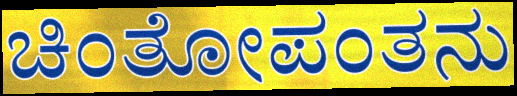
ಚಿಂತೋಪಂತನು